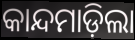
କାନ୍ଦମାଡ଼ିଲା